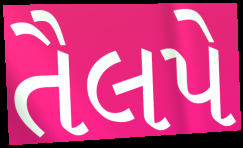
તૈલપે